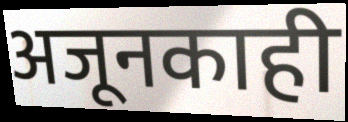
अजूनकाही